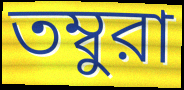
তম্বুরা